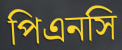
পিএনসি